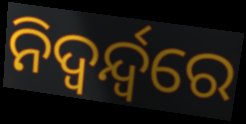
ନିଦ୍ଵର୍ନ୍ଦ୍ୱରେ